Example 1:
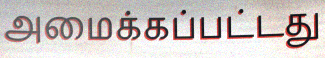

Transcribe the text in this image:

அமைக்கப்பட்டது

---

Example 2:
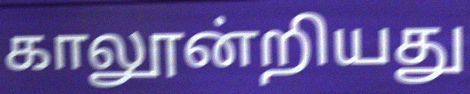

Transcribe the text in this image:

காலூன்றியது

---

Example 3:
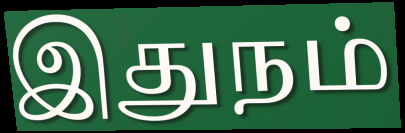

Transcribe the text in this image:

இதுநம்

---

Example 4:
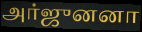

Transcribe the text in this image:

அர்ஜுனனா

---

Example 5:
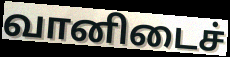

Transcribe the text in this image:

வானிடைச்